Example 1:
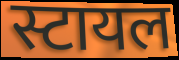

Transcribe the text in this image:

स्टायल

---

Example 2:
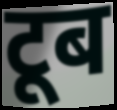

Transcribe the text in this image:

टूब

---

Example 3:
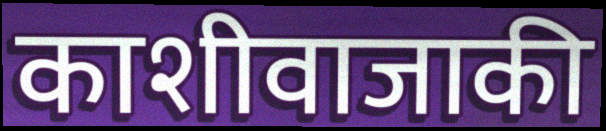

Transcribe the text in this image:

काशीवाजाकी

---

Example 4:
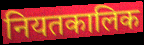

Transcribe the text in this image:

नियतकालिक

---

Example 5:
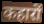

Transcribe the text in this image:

कहारों